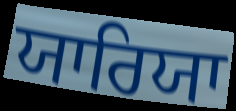
ਯਾਰਿਯਾ